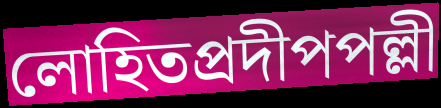
লোহিতপ্রদীপপল্লী